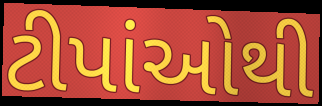
ટીપાંઓથી